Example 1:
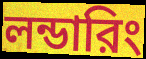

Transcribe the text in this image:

লন্ডারিং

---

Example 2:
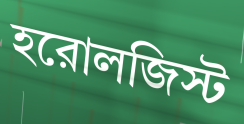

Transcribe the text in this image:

হরোলজিস্ট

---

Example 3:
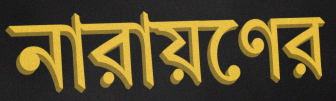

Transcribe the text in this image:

নারায়ণের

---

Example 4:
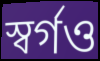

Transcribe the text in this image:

স্বর্গও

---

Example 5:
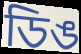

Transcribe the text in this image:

ডিঙ